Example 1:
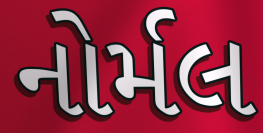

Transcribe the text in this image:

નોર્મલ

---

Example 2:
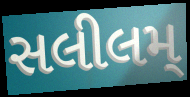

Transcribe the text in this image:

સલીલમ્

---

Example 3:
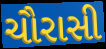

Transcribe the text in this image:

ચૌરાસી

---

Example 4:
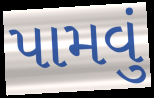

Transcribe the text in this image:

પામવું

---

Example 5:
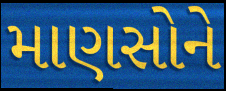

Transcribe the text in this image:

માણસોને